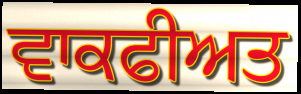
ਵਾਕਫੀਅਤ